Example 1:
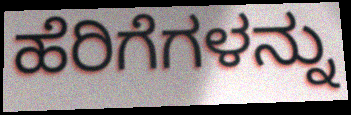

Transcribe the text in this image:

ಹೆರಿಗೆಗಳನ್ನು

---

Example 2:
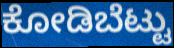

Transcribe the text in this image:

ಕೋಡಿಬೆಟ್ಟು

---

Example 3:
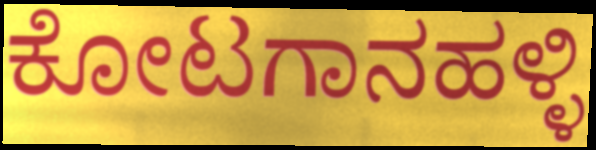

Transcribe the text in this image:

ಕೋಟಗಾನಹಳ್ಳಿ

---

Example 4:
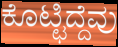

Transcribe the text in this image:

ಕೊಟ್ಟಿದ್ದೆವು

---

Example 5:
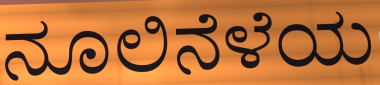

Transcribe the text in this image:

ನೂಲಿನೆಳೆಯ